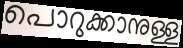
പൊറുക്കാനുള്ള